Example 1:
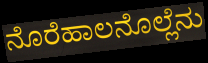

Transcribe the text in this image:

ನೊರೆಹಾಲನೊಲ್ಲೆನು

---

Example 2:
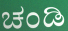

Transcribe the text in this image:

ಚಂಡಿ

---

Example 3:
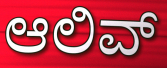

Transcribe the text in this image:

ಆಲಿವ್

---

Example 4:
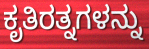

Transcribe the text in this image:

ಕೃತಿರತ್ನಗಳನ್ನು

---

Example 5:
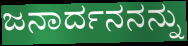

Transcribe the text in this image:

ಜನಾರ್ದನನನ್ನು